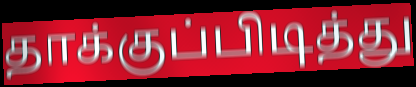
தாக்குப்பிடித்து